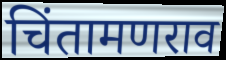
चिंतामणराव